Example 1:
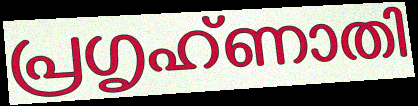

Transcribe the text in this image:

പ്രഗൃഹ്ണാതി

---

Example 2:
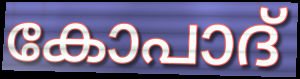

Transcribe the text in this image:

കോപാദ്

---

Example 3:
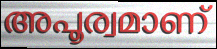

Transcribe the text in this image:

അപൂര്വമാണ്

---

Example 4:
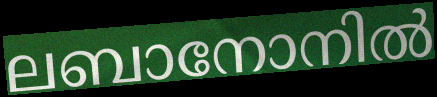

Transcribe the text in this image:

ലബാനോനിൽ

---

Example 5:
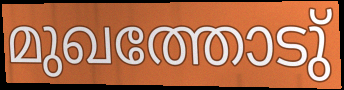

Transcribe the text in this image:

മുഖത്തോടു്